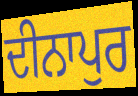
ਦੀਨਾਪੁਰ